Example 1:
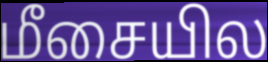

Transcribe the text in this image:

மீசையில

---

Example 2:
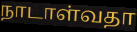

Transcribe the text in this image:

நாடாள்வதா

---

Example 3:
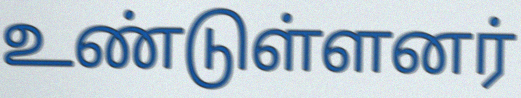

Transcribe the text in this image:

உண்டுள்ளனர்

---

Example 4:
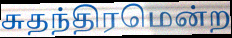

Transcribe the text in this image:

சுதந்திரமென்ற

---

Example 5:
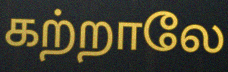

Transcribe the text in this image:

கற்றாலே